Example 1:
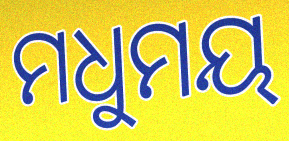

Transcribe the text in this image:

ମଧୁମୟ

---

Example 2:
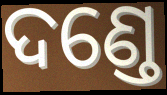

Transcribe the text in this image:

ଦଣ୍ଡେ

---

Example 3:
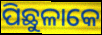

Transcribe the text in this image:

ପିଛୁଳାକେ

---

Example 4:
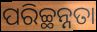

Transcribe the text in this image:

ପରିଚ୍ଛନ୍ନତା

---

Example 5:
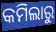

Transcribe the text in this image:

କମିଲାରୁ